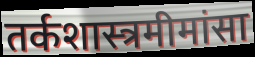
तर्कशास्त्रमीमांसा